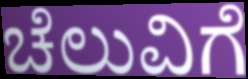
ಚೆಲುವಿಗೆ